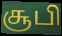
சூபி